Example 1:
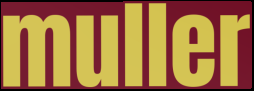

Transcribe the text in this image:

muller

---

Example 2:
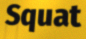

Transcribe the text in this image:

Squat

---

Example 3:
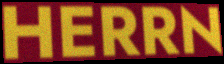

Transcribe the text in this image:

HERRN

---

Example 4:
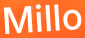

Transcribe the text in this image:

Millo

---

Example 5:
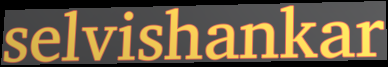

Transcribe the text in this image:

selvishankar